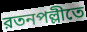
রতনপল্লীতে